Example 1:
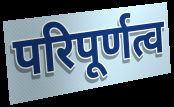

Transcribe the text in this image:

परिपूर्णत्व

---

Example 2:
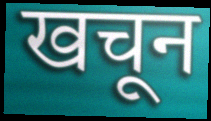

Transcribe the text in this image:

खचून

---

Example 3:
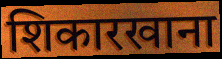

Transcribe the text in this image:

शिकारखाना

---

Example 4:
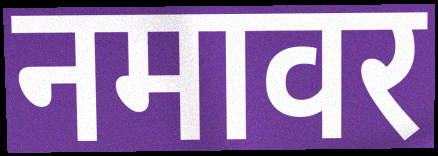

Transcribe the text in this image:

नमावर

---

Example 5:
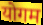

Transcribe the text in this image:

योगम